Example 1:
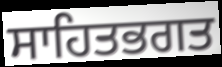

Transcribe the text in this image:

ਸਾਹਿਤਭਗਤ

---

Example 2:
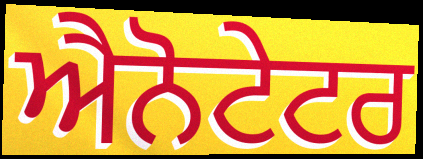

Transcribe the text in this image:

ਐਨੋਟੇਟਰ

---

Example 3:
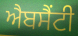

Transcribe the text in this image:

ਐਬਸੈਂਟੀ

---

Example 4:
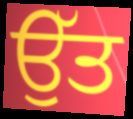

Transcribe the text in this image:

ਉੱਤ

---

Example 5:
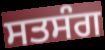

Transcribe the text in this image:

ਸਤਸੰਗ